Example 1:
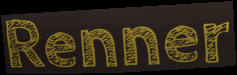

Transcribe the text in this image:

Renner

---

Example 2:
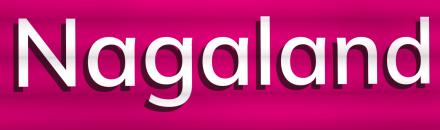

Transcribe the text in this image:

Nagaland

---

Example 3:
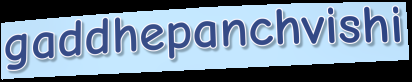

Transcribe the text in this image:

gaddhepanchvishi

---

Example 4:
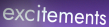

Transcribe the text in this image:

excitements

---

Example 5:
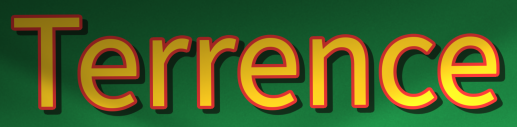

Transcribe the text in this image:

Terrence